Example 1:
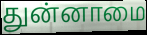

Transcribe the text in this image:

துன்னாமை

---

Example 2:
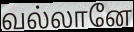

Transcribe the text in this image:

வல்லானே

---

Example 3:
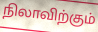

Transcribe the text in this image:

நிலாவிற்கும்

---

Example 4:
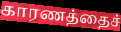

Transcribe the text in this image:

காரணத்தைச்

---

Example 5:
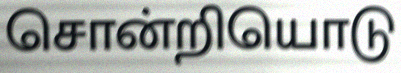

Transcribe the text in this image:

சொன்றியொடு